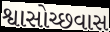
શ્વાસોચ્છવાસ